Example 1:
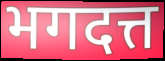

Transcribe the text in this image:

भगदत्त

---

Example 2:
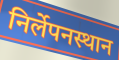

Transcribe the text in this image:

निर्लेपनस्थान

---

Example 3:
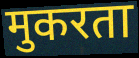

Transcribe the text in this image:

मुकरता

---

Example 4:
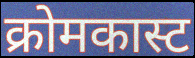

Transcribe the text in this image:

क्रोमकास्ट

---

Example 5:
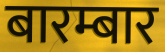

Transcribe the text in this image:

बारम्‍बार